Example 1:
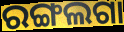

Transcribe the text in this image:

ରଙ୍ଗଲଗା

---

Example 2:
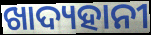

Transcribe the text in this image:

ଖାଦ୍ୟହାନୀ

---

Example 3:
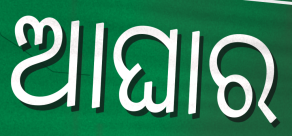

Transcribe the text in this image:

ଆଘାର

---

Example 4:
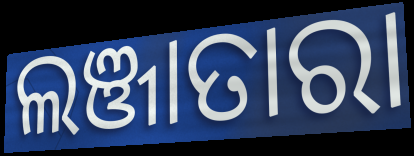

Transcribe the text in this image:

ଲଞ୍ଜାତାରା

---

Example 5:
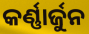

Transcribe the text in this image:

କର୍ଣ୍ଣାର୍ଜୁନ